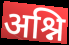
अश्नि